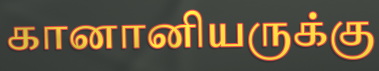
கானானியருக்கு